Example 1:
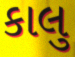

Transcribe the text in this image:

કાલુ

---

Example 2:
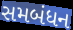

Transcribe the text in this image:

સમબંધન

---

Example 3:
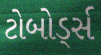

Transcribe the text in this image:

ટોબોર્ડ્સ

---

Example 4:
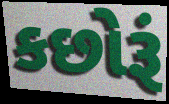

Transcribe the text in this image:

કછોરૂં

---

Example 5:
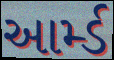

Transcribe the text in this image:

આર્મ્ડ